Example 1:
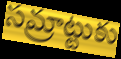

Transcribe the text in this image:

సమ్రాట్టుకు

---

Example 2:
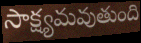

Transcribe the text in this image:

సాక్ష్యమవుతుంది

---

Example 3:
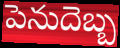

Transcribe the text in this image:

పెనుదెబ్బ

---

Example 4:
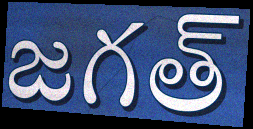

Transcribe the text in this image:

జగత్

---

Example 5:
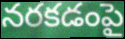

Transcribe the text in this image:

నరకడంపై